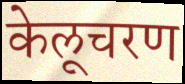
केलूचरण